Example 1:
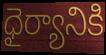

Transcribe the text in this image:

ధైర్యానికి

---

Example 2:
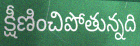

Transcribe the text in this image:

క్షీణించిపోతున్నది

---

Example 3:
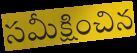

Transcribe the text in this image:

సమీక్షించిన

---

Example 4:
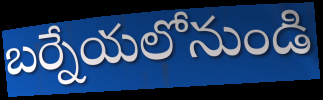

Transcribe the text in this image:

బర్నేయలోనుండి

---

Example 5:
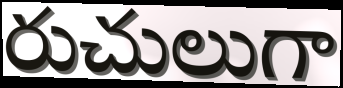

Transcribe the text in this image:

రుచులుగా